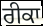
ਰੀਕਾ